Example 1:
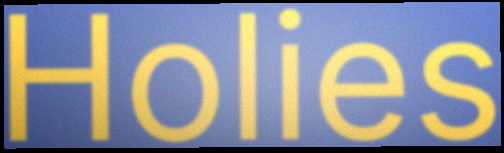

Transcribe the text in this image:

Holies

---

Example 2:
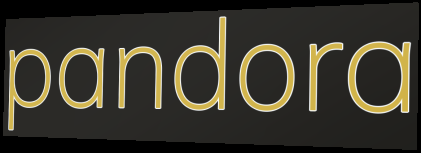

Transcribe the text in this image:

pandora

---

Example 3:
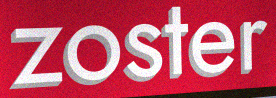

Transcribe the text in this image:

zoster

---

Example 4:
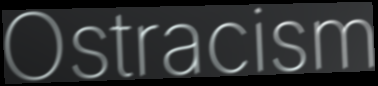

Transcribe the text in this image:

Ostracism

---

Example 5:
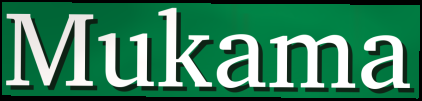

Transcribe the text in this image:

Mukama